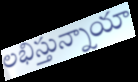
లభిస్తున్నాయా